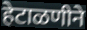
हेटाळणीने